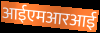
आईएमआरआई